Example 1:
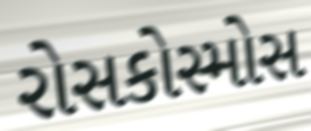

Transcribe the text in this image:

રોસકોસ્મોસ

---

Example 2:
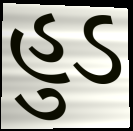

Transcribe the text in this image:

હુડ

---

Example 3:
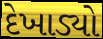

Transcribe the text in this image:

દેખાડ્યો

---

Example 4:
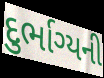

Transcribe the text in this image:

દુર્ભાગ્યની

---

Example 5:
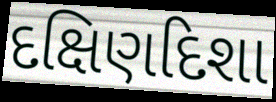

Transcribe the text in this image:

દક્ષિણદિશા